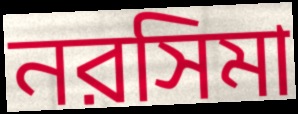
নরসিমা